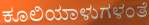
ಕೂಲಿಯಾಳುಗಳಂತೆ